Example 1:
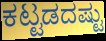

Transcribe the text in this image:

ಕಟ್ಟಡದಷ್ಟು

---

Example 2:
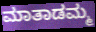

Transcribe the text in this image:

ಮಾತಾಡಮ್ಮ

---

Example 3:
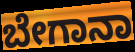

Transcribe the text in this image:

ಬೇಗಾನಾ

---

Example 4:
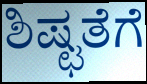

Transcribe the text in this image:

ಶಿಷ್ಟತೆಗೆ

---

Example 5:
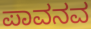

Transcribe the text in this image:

ಪಾವನವ